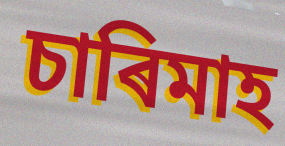
চাৰিমাহ